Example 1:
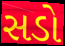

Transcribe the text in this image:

સડો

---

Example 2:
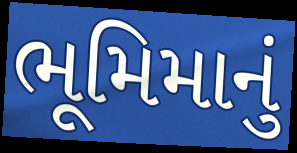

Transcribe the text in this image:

ભૂમિમાનું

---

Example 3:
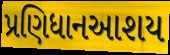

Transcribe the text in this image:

પ્રણિધાનઆશય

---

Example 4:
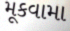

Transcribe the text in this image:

મૂકવામા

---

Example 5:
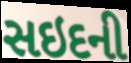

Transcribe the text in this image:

સઇદની